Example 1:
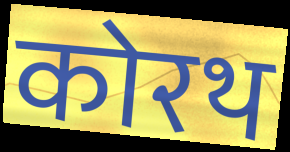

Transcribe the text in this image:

कोरथ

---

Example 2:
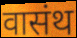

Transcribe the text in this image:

वासंथ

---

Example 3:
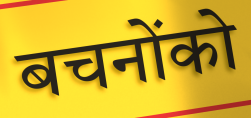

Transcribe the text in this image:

बचनोंको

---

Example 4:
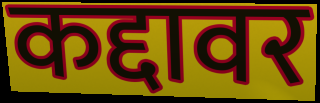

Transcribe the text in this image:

कद्दावर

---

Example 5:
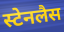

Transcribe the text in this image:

स्टेनलैस